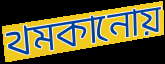
থমকানোয়